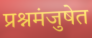
प्रश्नमंजुषेत